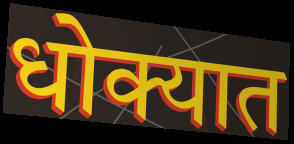
धोक्‍यात